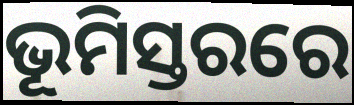
ଭୂମିସ୍ତରରେ